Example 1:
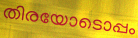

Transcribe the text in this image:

തിരയോടൊപ്പം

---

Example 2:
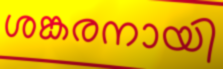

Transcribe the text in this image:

ശങ്കരനായി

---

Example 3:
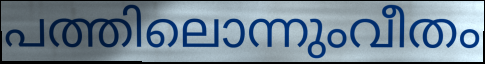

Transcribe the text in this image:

പത്തിലൊന്നുംവീതം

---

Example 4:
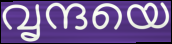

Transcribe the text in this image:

വൃന്ദയെ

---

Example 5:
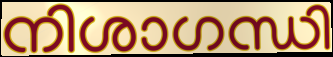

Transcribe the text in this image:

നിശാഗന്ധി